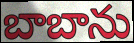
బాబాను